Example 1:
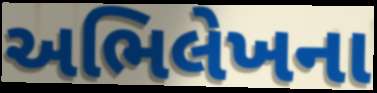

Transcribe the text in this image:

અભિલેખના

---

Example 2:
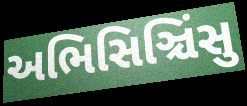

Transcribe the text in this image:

અભિસિઞ્ચિંસુ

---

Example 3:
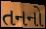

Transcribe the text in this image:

તનનો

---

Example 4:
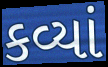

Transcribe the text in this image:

કવ્યાં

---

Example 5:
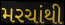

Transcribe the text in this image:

મરચાંથી